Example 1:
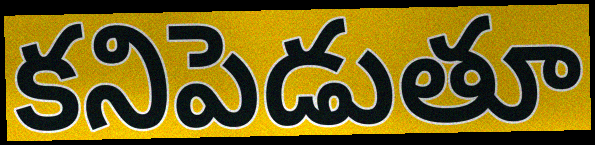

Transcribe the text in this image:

కనిపెడుతూ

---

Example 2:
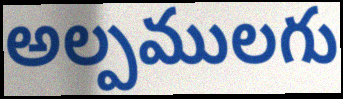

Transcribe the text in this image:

అల్పములగు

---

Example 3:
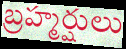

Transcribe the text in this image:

బ్రహ్మర్షులు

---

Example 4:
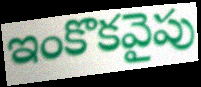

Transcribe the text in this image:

ఇంకొకవైపు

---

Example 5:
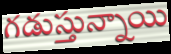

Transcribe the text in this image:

గడుస్తున్నాయి